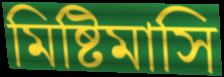
মিষ্টিমাসি